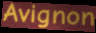
Avignon